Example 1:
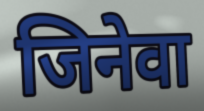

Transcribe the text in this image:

जिनेवा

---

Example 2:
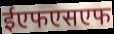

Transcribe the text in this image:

ईएफएसएफ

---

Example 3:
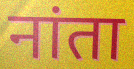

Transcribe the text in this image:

नांता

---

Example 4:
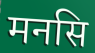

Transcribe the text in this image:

मनसि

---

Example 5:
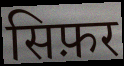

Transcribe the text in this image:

सिफ़र